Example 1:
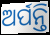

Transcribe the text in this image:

ଅର୍ପନ୍ତି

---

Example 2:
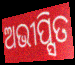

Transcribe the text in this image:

ଅଭୀପ୍ସିତ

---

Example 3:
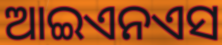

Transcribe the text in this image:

ଆଇଏନଏସ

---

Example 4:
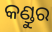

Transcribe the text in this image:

କଣ୍ଡୁର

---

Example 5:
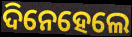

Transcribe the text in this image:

ଦିନେହେଲେ